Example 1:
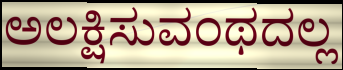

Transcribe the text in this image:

ಅಲಕ್ಷಿಸುವಂಥದಲ್ಲ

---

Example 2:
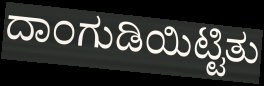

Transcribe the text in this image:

ದಾಂಗುಡಿಯಿಟ್ಟಿತು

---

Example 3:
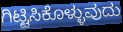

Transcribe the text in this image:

ಗಿಟ್ಟಿಸಿಕೊಳ್ಳುವುದು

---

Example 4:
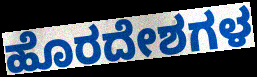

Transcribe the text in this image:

ಹೊರದೇಶಗಳ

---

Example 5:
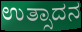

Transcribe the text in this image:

ಉತ್ಸಾದನ